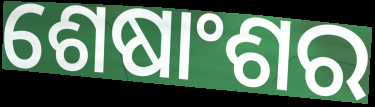
ଶେଷାଂଶର